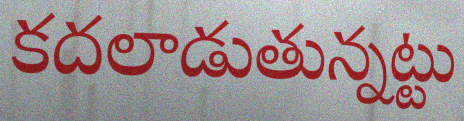
కదలాడుతున్నట్టు